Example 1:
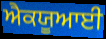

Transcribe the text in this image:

ਐਕਯੂਆਈ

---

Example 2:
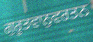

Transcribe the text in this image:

ਗੁਰੂਤਵਾਨੁਵਰਤਨ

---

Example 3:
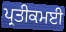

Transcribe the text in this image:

ਪ੍ਰਤੀਕਮਈ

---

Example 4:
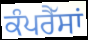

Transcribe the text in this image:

ਕੰਪਰੈੱਸਾਂ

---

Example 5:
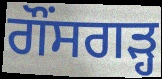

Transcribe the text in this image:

ਗੌਂਸਗੜ੍ਹ